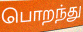
பொறந்து